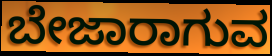
ಬೇಜಾರಾಗುವ